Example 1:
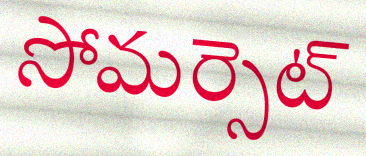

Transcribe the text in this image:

సోమర్సెట్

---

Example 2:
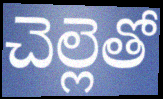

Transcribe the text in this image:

చెల్లెతో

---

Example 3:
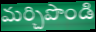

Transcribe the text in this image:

మర్చిపొండి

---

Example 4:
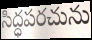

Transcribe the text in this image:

సిద్ధపరచును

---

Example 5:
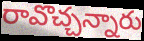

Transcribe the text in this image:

రావొచ్చన్నారు